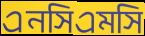
এনসিএমসি